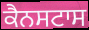
ਕੈਨਸਟਾਸ